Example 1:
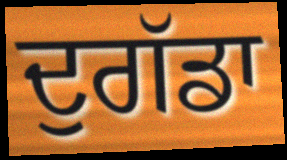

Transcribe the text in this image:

ਦੁਗੱਡਾ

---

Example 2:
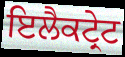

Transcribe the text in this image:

ਇਲੈਕਟ੍ਰੇਟ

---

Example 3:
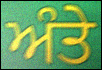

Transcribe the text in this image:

ਅੰਤੇ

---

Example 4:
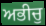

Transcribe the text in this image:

ਅਭੀਚੁ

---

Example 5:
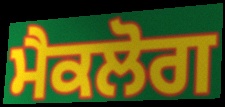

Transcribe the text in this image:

ਮੈਕਲੋਗ